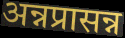
अन्नप्रासन्न